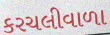
કરચલીવાળા